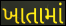
ખાતામાં